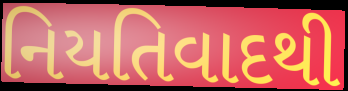
નિયતિવાદથી